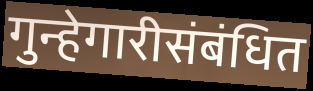
गुन्हेगारीसंबंधित